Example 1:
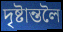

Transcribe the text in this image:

দৃষ্টান্তলৈ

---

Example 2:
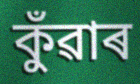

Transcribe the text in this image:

কুঁৱাৰ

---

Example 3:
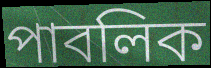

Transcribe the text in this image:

পাবলিক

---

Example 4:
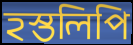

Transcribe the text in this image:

হস্তলিপি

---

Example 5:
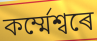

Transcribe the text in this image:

কৰ্ম্মেশ্বৰে